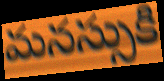
మనస్సుకి